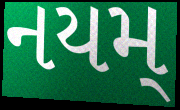
નયમ્